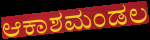
ಆಕಾಶಮಂಡಲ